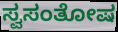
ಸ್ವಸಂತೋಷ